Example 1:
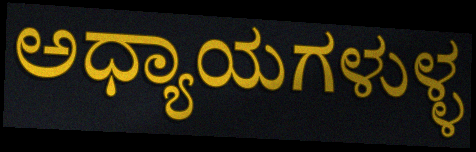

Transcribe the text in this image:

ಅಧ್ಯಾಯಗಳುಳ್ಳ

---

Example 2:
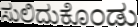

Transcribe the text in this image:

ಸುಲಿದುಕೊಂಡು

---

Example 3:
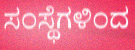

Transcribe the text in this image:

ಸಂಸ್ಥೆಗಳಿಂದ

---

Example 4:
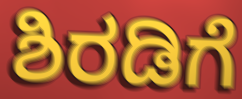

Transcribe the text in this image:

ಶಿರಡಿಗೆ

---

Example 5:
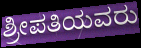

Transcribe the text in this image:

ಶ್ರೀಪತಿಯವರು